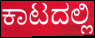
ಕಾಟದಲ್ಲಿ